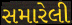
સમારેલી